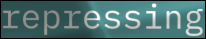
repressing